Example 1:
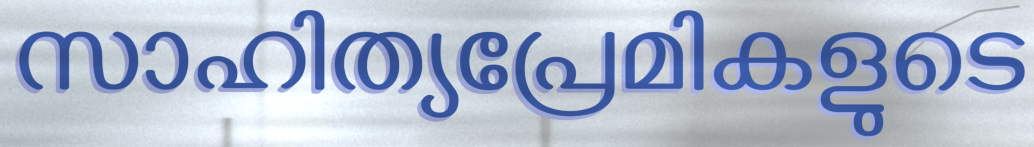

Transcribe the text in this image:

സാഹിത്യപ്രേമികളുടെ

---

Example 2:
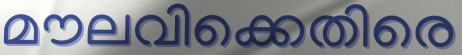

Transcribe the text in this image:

മൗലവിക്കെതിരെ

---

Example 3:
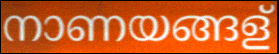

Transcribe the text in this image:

നാണയങ്ങള്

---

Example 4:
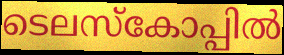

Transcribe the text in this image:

ടെലസ്കോപ്പിൽ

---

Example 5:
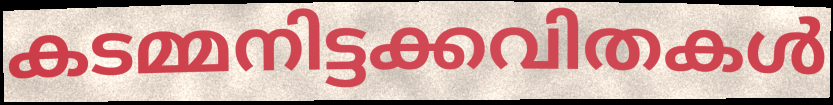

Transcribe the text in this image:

കടമ്മനിട്ടക്കവിതകൾ